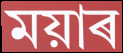
ময়াৰ